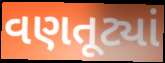
વણતૂટ્યાં